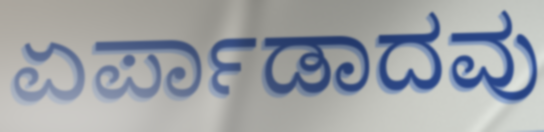
ಏರ್ಪಾಡಾದವು